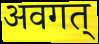
अवगत्